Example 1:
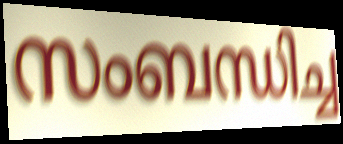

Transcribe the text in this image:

സംബന്ധിച്ച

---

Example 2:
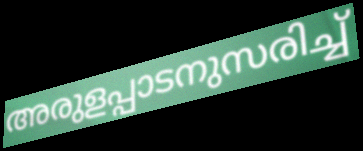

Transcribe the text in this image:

അരുളപ്പാടനുസരിച്ച്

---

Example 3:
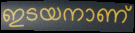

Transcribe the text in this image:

ഇടയനാണ്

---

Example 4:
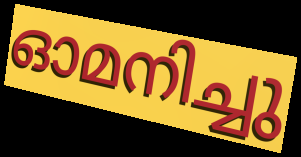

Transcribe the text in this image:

ഓമനിച്ചു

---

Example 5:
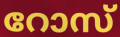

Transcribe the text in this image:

റോസ്